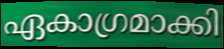
ഏകാഗ്രമാക്കി